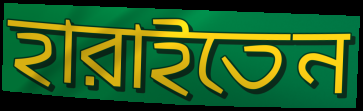
হারাইতেন